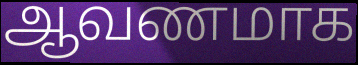
ஆவணமாக